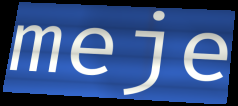
meje